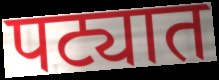
पट्यात